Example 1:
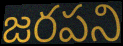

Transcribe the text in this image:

జరపని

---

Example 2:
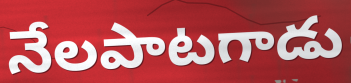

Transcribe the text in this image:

నేలపాటగాడు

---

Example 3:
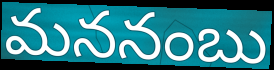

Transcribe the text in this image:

మననంబు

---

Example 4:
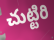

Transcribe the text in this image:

చుట్టిరి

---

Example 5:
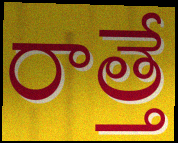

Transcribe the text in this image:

రాత్తే